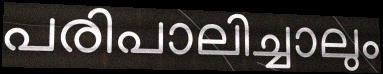
പരിപാലിച്ചാലും